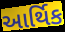
આર્થિક